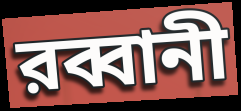
রব্বানী